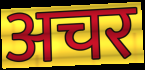
अचर